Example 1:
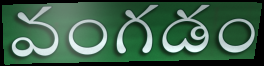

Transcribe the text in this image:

వంగడం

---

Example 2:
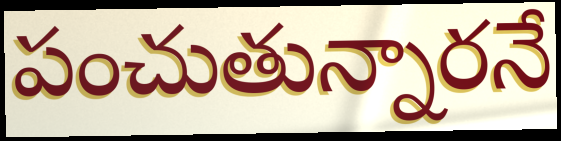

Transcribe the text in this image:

పంచుతున్నారనే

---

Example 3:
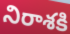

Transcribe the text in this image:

నిరాశకి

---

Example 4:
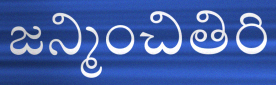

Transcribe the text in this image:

జన్మించితిరి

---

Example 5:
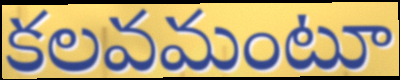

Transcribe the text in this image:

కలవమంటూ